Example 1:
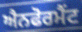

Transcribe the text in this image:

ਐਨਫੋਰਮੈਂਟ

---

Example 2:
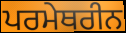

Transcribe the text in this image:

ਪਰਮੇਥਰੀਨ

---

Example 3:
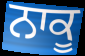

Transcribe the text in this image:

ਨਾਕੂ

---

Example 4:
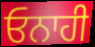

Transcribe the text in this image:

ਓਨਾਹੀ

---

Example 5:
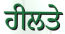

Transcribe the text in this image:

ਹੀਲਤੇ